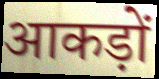
आकड़ों